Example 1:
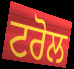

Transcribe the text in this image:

ਟਰੋਲ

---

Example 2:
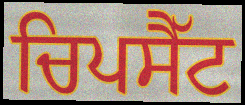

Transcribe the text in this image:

ਚਿਪਸੈੱਟ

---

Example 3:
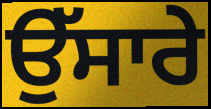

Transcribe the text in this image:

ਉੱਸਾਰੇ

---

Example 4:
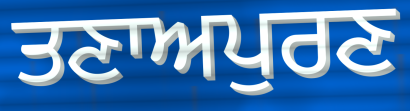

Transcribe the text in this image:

ਤਣਾਅਪੁਰਣ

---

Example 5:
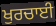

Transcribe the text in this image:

ਖੁਰਚਾਈ